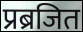
प्रब्रजित